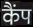
कैंप